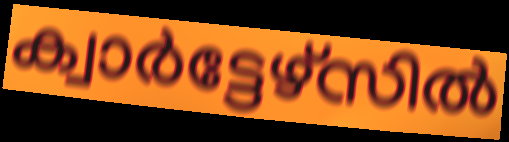
ക്വാർട്ടേഴ്സിൽ